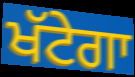
ਖੱਟੇਗਾ